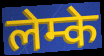
लेम्के